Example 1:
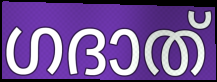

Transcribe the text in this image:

ഗദാത്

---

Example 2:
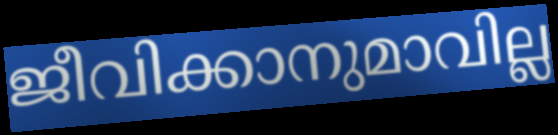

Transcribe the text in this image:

ജീവിക്കാനുമാവില്ല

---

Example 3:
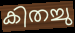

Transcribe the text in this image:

കിതച്ചു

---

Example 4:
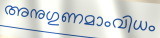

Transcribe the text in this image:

അനുഗുണമാംവിധം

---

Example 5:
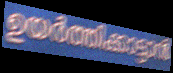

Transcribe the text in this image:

ഉയർത്തിക്കാട്ടാൻ